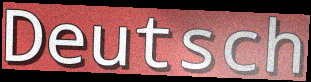
Deutsch